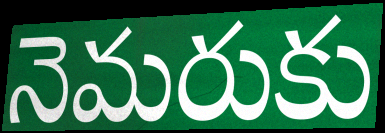
నెమరుకు